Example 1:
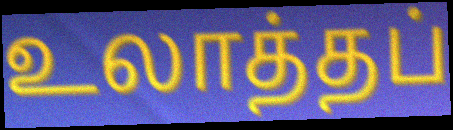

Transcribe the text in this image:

உலாத்தப்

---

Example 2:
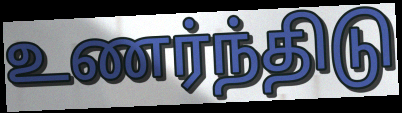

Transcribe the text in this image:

உணர்ந்திடு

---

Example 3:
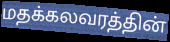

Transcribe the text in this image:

மதக்கலவரத்தின்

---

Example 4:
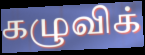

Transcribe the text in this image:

கழுவிக்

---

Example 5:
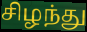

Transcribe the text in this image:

சிழந்து